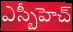
ఎస్బీహెచ్